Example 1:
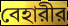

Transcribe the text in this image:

বেহারীর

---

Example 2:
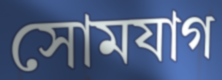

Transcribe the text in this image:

সোমযাগ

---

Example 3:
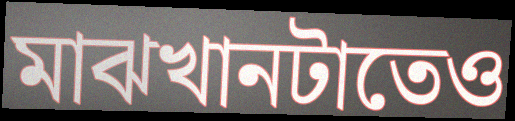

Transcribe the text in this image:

মাঝখানটাতেও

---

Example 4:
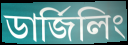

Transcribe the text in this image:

ডার্জিলিং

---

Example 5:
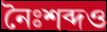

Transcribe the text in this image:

নৈঃশব্দও